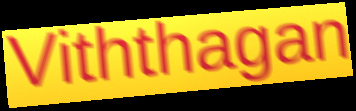
Viththagan